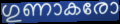
ഗുണാകരോ